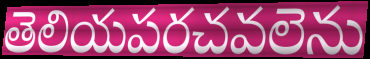
తెలియపరచవలెను